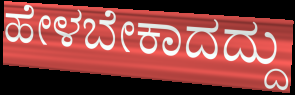
ಹೇಳಬೇಕಾದದ್ದು